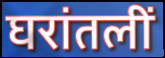
घरांतलीं